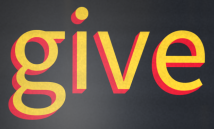
give